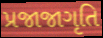
પ્રજાજાગૃતિ